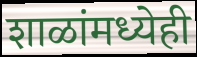
शाळांमध्येही